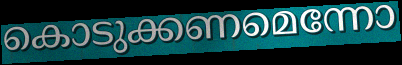
കൊടുക്കണമെന്നോ